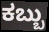
ಕಬ್ಬು